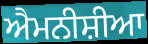
ਐਮਨੀਸ਼ੀਆ